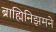
ब्राह्मिनिझमने